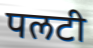
पलटी